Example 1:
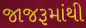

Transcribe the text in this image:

જાજરૂમાંથી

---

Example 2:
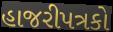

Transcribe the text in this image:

હાજરીપત્રકો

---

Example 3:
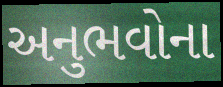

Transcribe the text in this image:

અનુભવોના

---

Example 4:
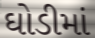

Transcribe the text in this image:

ઘોડીમાં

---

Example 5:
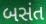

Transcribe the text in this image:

બસંત